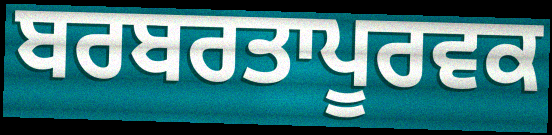
ਬਰਬਰਤਾਪੂਰਵਕ